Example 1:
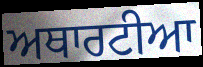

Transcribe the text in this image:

ਅਥਾਰਟੀਆ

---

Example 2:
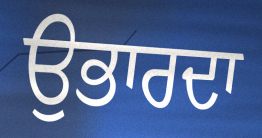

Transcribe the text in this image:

ਉਭਾਰਦਾ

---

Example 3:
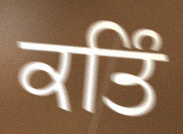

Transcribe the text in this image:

ਕਤਿੰ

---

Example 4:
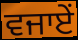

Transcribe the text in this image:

ਵਜਾਏਂ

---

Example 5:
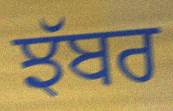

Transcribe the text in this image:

ਝੱਬਰ